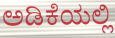
ಅಡಿಕೆಯಲ್ಲಿ